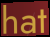
hat